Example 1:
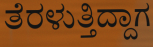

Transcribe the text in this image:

ತೆರಳುತ್ತಿದ್ದಾಗ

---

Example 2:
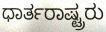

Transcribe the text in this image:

ಧಾರ್ತರಾಷ್ಟ್ರರು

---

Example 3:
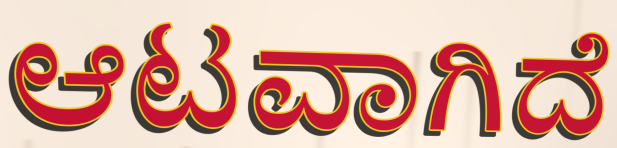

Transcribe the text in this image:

ಆಟವಾಗಿದೆ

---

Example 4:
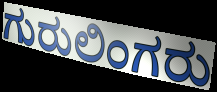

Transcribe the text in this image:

ಗುರುಲಿಂಗರು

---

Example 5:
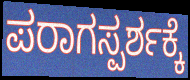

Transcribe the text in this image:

ಪರಾಗಸ್ಪರ್ಶಕ್ಕೆ